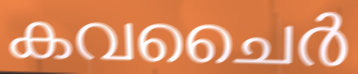
കവചൈർ